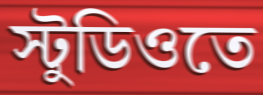
স্টুডিওতে